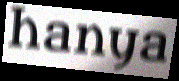
hanya